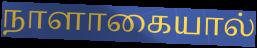
நாளாகையால்